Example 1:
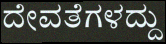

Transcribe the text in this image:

ದೇವತೆಗಳದ್ದು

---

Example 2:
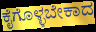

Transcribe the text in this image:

ಕೈಗೊಳ್ಳಬೇಕಾದ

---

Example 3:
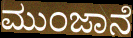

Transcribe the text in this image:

ಮುಂಜಾನೆ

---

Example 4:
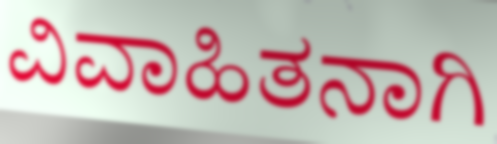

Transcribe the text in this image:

ವಿವಾಹಿತನಾಗಿ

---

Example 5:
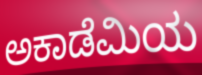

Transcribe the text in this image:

ಅಕಾಡೆಮಿಯ